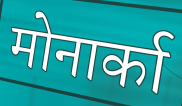
मोनार्का